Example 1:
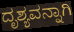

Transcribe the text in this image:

ದೃಶ್ಯವನ್ನಾಗಿ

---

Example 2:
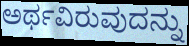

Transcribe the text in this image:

ಅರ್ಥವಿರುವುದನ್ನು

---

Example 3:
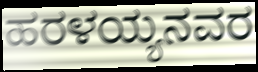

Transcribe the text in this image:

ಹರಳಯ್ಯನವರ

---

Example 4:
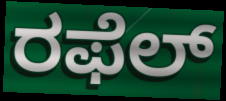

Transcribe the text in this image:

ರಫೆಲ್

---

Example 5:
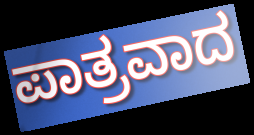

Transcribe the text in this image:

ಪಾತ್ರವಾದ